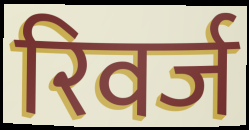
रिवर्ज